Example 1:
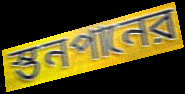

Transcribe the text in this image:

স্তনপানের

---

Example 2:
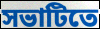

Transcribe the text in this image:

সভাটিতে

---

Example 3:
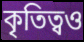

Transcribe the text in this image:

কৃতিত্বও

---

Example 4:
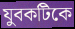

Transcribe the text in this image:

যুবকটিকে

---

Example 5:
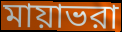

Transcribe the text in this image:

মায়াভরা